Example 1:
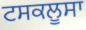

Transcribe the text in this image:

ਟਸਕਲੂਸਾ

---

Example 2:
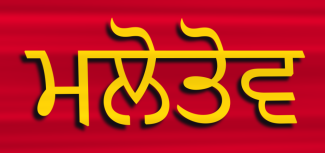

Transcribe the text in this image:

ਮਲੋਤੋਵ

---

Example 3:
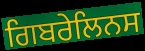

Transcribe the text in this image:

ਗਿਬਰੇਲਿਨਸ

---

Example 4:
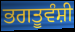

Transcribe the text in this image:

ਭਗਤੂਵੰਸ਼ੀ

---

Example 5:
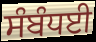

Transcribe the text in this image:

ਸੰਬੰਧਈ